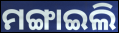
ମଙ୍ଗାଇଲି